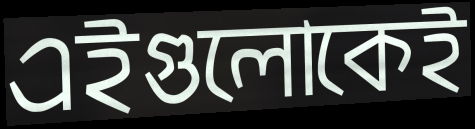
এইগুলোকেই